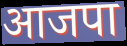
आजपा